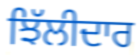
ਝਿੱਲੀਦਾਰ